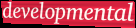
developmental